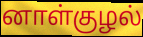
னாள்குழல்